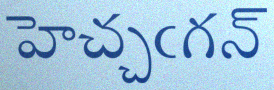
హెచ్చఁగన్